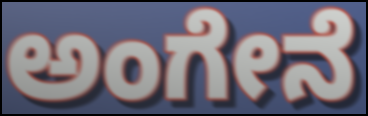
ಅಂಗೇನೆ